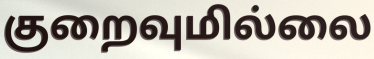
குறைவுமில்லை